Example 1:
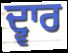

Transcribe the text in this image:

ਦ੍ਵਾਰ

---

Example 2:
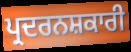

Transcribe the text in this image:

ਪ੍ਰਦਰਨਸ਼ਕਾਰੀ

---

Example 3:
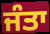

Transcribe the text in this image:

ਜੰਤਾ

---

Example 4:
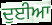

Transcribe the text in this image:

ਦੁਈਆ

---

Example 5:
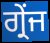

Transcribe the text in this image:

ਗ੍ਰੇਂਜ